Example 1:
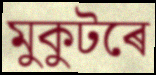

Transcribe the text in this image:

মুকুটৰে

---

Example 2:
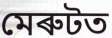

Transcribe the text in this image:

মেৰুটত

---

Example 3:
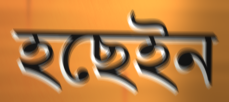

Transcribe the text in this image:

হছেইন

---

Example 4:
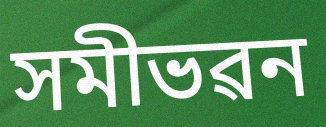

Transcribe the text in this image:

সমীভৱন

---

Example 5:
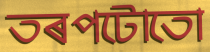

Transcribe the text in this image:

তৰপটোতো